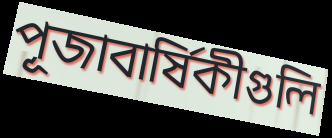
পূজাবার্ষিকীগুলি